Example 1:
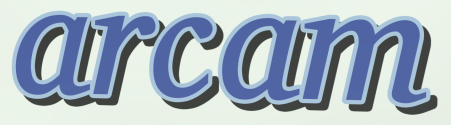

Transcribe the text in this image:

arcam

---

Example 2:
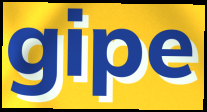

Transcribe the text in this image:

gipe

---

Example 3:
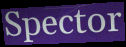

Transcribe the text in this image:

Spector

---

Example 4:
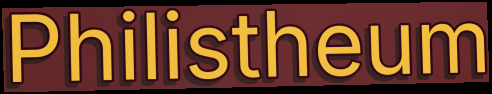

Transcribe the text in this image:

Philistheum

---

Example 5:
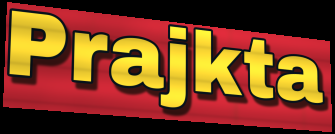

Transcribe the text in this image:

Prajkta